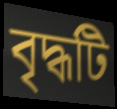
বৃদ্ধটি